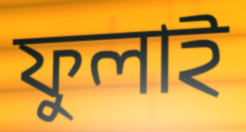
ফুলাই